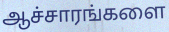
ஆச்சாரங்களை